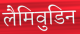
लैमिवुडिन